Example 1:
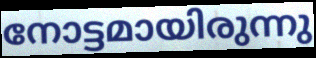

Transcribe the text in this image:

നോട്ടമായിരുന്നു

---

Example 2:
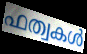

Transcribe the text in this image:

ഫത്വകൾ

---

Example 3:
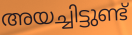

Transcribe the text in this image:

അയച്ചിട്ടുണ്ട്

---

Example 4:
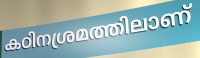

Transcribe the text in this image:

കഠിനശ്രമത്തിലാണ്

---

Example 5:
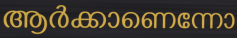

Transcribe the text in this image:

ആർക്കാണെന്നോ